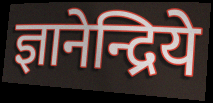
ज्ञानेन्द्रिये